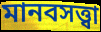
মানবসত্ত্বা